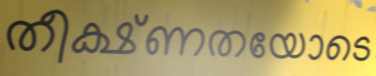
തീക്ഷ്ണതയോടെ